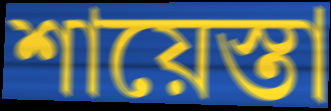
শায়েস্তা